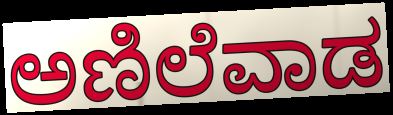
ಅಣಿಲೆವಾಡ